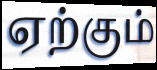
ஏற்கும்